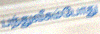
பந்துவீசும்போது